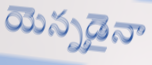
యెన్నడైనా